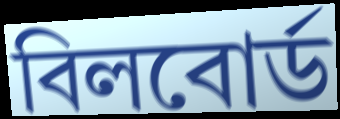
বিলবোর্ড